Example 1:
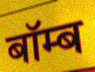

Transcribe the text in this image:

बॉम्ब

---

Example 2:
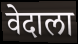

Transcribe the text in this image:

वेदाला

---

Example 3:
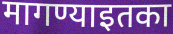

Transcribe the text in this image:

मागण्याइतका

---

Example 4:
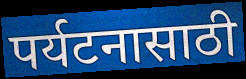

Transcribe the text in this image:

पर्यटनासाठी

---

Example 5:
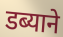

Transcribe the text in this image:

डब्याने